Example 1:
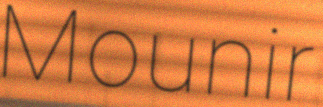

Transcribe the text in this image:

Mounir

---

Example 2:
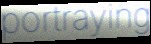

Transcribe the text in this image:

portraying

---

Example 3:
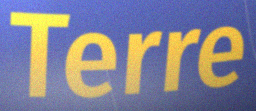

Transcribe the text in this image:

Terre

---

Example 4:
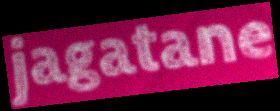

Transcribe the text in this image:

jagatane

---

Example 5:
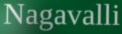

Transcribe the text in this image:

Nagavalli